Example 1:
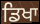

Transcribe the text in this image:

ਡਿਖਾ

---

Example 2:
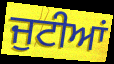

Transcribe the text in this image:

ਜੁਟੀਆਂ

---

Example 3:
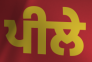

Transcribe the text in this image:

ਪੀਲੇ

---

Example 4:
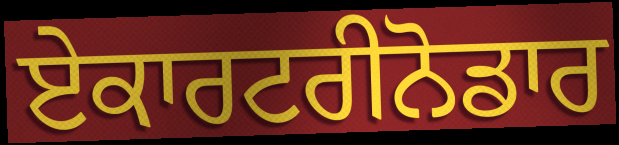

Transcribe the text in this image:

ਏਕਾਰਟਰੀਨੋਡਾਰ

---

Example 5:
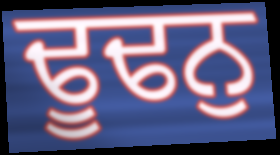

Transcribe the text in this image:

ਢੂਢਨੁ